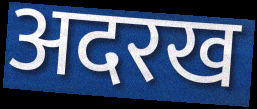
अदरख